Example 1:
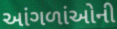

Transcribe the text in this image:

આંગળાંઓની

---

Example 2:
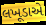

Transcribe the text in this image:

લખૂડાએ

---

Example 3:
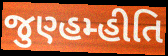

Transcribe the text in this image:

જુણ્હમ્હીતિ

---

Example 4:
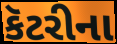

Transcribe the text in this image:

કૅટરીના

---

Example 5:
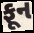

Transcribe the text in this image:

ફૂન